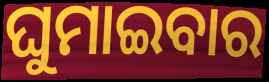
ଘୁମାଇବାର